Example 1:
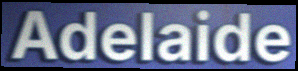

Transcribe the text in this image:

Adelaide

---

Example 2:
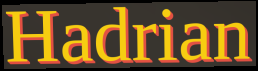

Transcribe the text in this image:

Hadrian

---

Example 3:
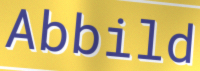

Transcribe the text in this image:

Abbild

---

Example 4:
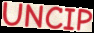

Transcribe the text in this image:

UNCIP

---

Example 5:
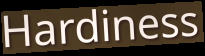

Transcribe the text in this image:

Hardiness